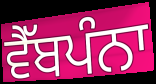
ਵੈੱਬਪੰਨਾ